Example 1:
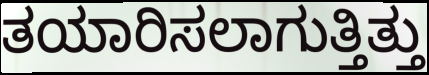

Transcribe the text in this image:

ತಯಾರಿಸಲಾಗುತ್ತಿತ್ತು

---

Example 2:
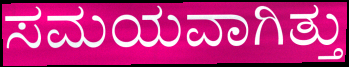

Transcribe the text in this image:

ಸಮಯವಾಗಿತ್ತು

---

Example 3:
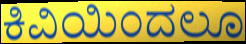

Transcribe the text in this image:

ಕಿವಿಯಿಂದಲೂ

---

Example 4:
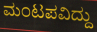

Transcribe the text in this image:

ಮಂಟಪವಿದ್ದು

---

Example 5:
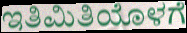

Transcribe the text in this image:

ಇತಿಮಿತಿಯೊಳಗೆ